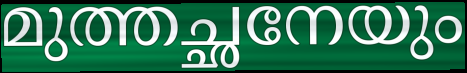
മുത്തച്ഛനേയും